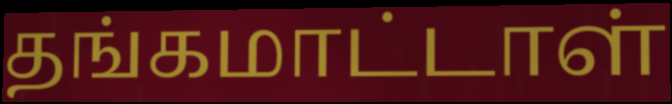
தங்கமாட்டாள்